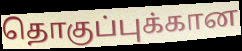
தொகுப்புக்கான